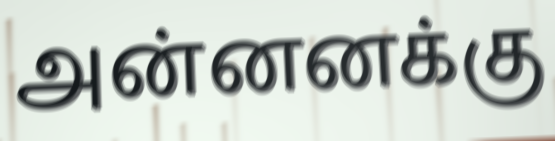
அன்னனக்கு